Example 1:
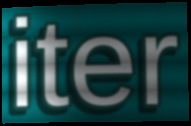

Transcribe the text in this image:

iter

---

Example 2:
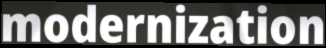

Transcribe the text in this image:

modernization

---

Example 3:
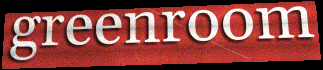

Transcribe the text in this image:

greenroom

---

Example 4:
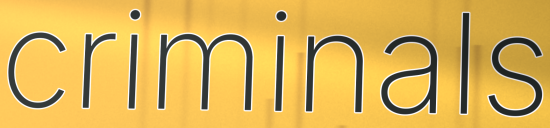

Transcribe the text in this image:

criminals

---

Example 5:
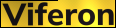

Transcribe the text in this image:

Viferon